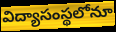
విద్యాసంస్థలోనూ